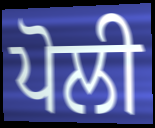
ਪੋਲੀ